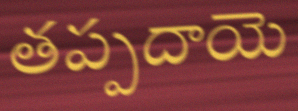
తప్పదాయె